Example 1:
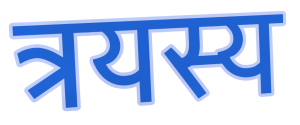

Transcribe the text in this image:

त्रयस्य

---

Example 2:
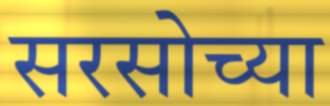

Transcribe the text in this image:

सरसोच्या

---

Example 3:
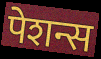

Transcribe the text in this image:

पेशन्स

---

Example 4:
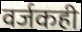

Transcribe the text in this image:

वर्जकही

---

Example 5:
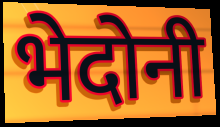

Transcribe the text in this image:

भेदोनी